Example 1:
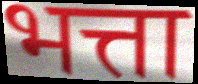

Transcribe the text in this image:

भत्ता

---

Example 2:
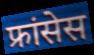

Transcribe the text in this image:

फ्रांसेस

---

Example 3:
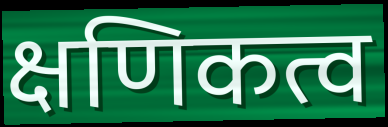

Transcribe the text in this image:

क्षणिकत्व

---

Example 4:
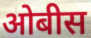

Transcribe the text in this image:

ओबीस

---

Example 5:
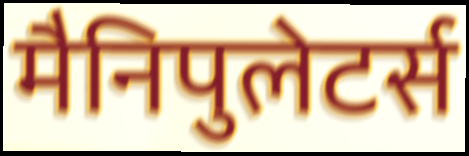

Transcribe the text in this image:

मैनिपुलेटर्स